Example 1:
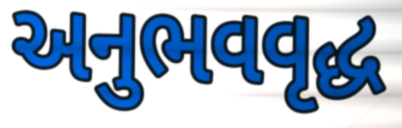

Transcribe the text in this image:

અનુભવવૃદ્ધ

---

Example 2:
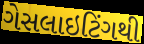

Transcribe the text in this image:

ગેસલાઇટિંગથી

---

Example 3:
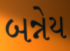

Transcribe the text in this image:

બન્નેય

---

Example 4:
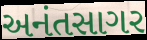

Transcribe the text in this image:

અનંતસાગર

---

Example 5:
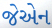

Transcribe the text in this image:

જેએન